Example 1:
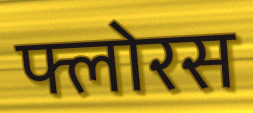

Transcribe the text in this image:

फ्लोरस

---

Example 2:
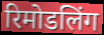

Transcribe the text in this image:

रिमोडलिंग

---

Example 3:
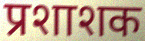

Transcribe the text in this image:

प्रशाशक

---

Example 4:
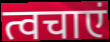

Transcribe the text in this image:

त्वचाएं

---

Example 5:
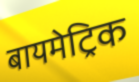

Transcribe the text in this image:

बायमेट्रिक